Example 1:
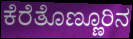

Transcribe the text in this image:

ಕೆರೆತೊಣ್ಣೂರಿನ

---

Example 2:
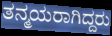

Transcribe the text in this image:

ತನ್ಮಯರಾಗಿದ್ದರು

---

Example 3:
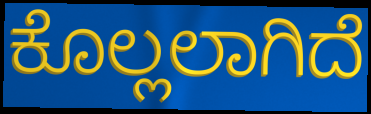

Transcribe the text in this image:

ಕೊಲ್ಲಲಾಗಿದೆ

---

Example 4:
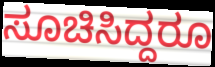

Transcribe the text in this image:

ಸೂಚಿಸಿದ್ದರೂ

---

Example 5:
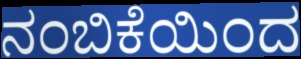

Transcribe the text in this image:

ನಂಬಿಕೆಯಿಂದ